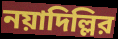
নয়াদিল্লির